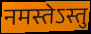
नमस्तेऽस्तु